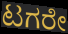
ಟಗರೇ